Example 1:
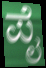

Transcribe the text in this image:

ಪೈ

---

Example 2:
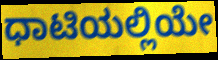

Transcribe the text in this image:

ಧಾಟಿಯಲ್ಲಿಯೇ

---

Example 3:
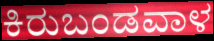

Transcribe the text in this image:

ಕಿರುಬಂಡವಾಳ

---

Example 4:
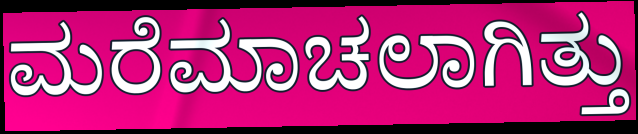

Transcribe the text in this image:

ಮರೆಮಾಚಲಾಗಿತ್ತು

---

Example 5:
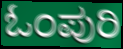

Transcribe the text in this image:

ಓಂಪುರಿ